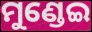
ମୁଣ୍ଡେଇ